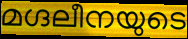
മഗ്ദലീനയുടെ